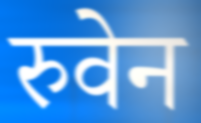
रुवेन